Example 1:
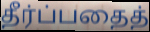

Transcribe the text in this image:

தீர்ப்பதைத்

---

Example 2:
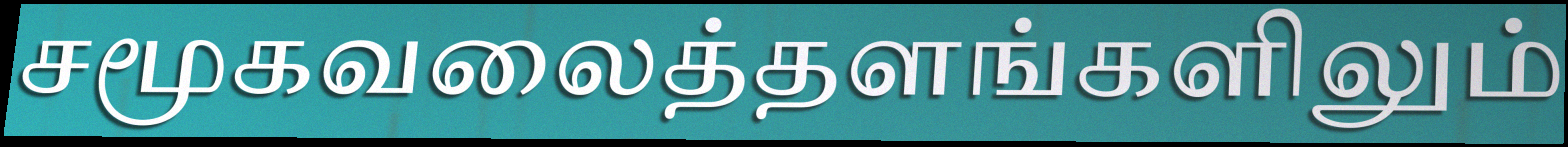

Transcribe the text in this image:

சமூகவலைத்தளங்களிலும்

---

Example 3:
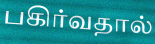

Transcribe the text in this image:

பகிர்வதால்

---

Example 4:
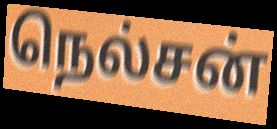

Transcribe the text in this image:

நெல்சன்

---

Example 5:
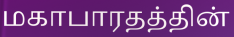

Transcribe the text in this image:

மகாபாரதத்தின்